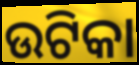
ଉଟିକା